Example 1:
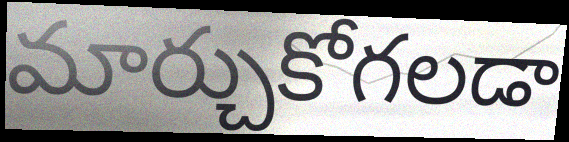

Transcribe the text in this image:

మార్చుకోగలడా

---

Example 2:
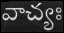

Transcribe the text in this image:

వాచ్యః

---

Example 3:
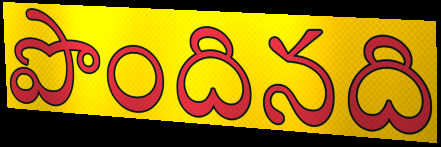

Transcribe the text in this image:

పొందినది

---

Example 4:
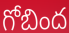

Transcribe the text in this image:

గోబింద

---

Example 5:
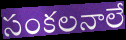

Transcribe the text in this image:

సంకలనాలే